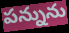
పన్నును